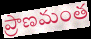
ప్రాణమంత